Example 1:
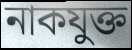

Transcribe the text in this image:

নাকযুক্ত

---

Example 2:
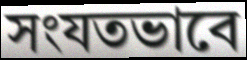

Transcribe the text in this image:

সংযতভাবে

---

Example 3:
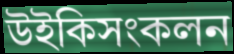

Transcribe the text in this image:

উইকিসংকলন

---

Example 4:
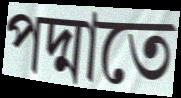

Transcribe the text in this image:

পদ্মাতে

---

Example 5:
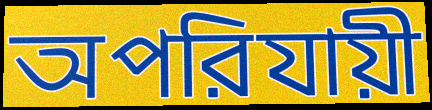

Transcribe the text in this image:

অপরিযায়ী